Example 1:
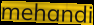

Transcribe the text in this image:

mehandi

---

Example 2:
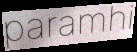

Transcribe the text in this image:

paramhi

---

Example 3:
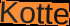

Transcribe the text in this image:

Kotte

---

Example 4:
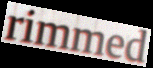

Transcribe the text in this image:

rimmed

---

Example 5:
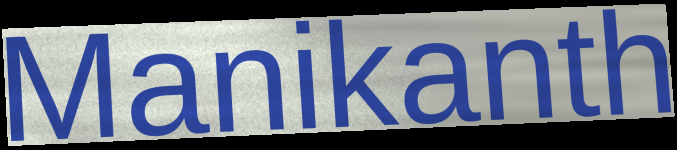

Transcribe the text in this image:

Manikanth